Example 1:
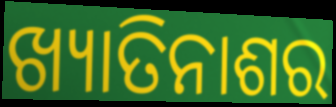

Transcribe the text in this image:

ଖ୍ୟାତିନାଶର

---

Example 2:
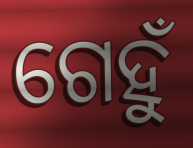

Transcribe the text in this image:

ଗେହୁଁ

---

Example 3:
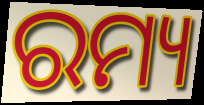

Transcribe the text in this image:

ରମ୍ୟ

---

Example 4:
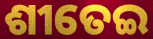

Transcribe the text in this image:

ଶୀତେଇ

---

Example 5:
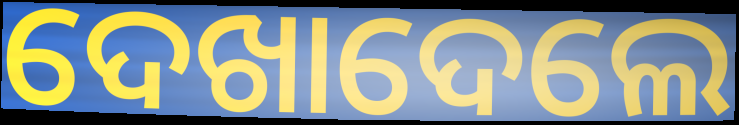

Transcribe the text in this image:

ଦେଖାଦେଲେ